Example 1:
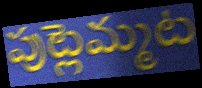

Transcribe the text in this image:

పుట్లెమ్మట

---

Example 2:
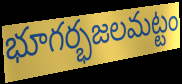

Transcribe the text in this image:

భూగర్భజలమట్టం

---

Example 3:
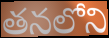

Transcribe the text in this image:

తనలోని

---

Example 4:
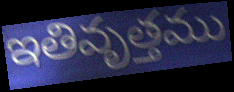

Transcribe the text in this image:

ఇతివృత్తము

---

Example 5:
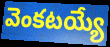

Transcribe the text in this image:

వెంకటయ్యే